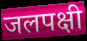
जलपक्षी